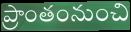
ప్రాంతంనుంచి